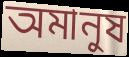
অমানুষ